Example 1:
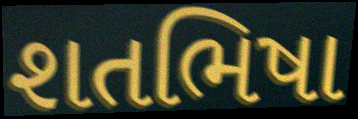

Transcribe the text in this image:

શતભિષા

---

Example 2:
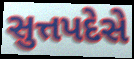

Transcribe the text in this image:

સુત્તપદેસે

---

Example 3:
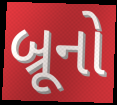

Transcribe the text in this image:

બ્રૂનો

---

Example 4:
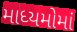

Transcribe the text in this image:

માધ્યમોમાં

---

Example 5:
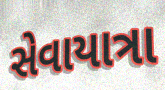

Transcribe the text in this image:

સેવાયાત્રા